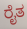
ರೈತ